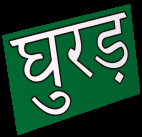
घुरड़